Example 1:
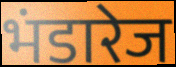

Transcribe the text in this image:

भंडारेज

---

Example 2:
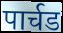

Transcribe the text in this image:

पार्चड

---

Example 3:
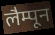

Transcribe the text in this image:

लैम्पून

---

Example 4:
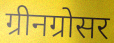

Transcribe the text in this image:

ग्रीनग्रोसर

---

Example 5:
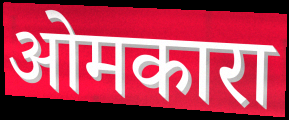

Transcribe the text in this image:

ओमकारा